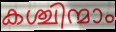
കശ്ചിന്മാം